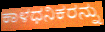
ಕಾಳಧನಿಕರನ್ನು